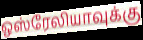
ஒஸ்ரேலியாவுக்கு